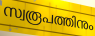
സ്വരൂപത്തിനും